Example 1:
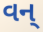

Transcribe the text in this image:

વન્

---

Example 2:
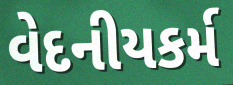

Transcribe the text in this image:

વેદનીયકર્મ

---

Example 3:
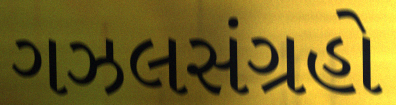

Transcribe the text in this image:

ગઝલસંગ્રહો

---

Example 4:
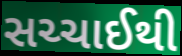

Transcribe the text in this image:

સચ્ચાઈથી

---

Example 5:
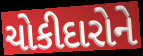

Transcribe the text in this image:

ચોકીદારોને